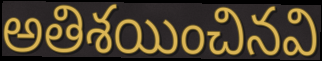
అతిశయించినవి